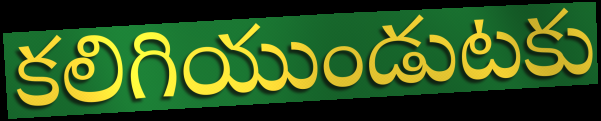
కలిగియుండుటకు